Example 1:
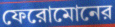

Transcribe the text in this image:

ফেরোমোনের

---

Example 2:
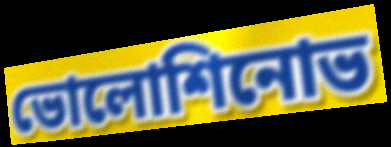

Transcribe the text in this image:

ভোলোশিনোভ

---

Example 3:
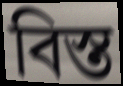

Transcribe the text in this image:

বিস্ত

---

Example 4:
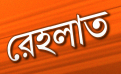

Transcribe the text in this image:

রেহলাত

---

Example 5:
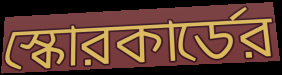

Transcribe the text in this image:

স্কোরকার্ডের